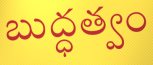
బుద్ధత్వం